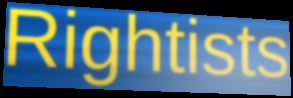
Rightists